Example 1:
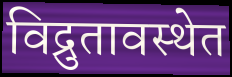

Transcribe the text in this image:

विद्रुतावस्थेत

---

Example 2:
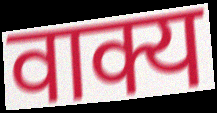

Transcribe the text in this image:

वाक्य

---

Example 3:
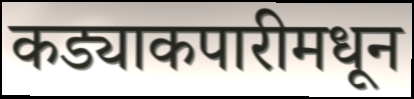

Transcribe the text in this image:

कड्याकपारीमधून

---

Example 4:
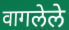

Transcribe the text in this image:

वागलेले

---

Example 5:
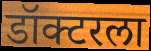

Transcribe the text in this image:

डॉक्टरला